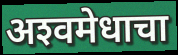
अश्‍वमेधाचा